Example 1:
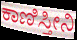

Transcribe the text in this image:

ಕಾಣಿಸ್ತೀನಿ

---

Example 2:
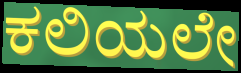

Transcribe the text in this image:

ಕಲಿಯಲೇ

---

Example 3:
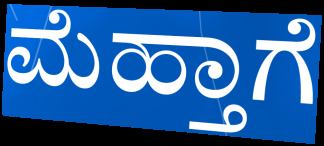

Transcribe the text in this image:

ಮೆಹ್ತಾಗೆ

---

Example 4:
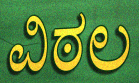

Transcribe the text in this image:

ವಿಠಲ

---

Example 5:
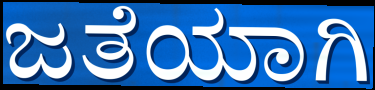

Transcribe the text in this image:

ಜತೆಯಾಗಿ